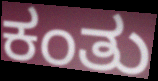
ಕಂತು